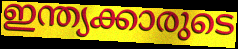
ഇന്ത്യക്കാരുടെ